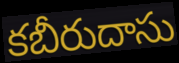
కబీరుదాసు